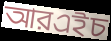
আরএইচ